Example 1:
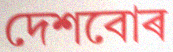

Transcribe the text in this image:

দেশবোৰ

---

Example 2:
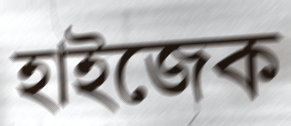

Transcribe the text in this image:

হাইজেক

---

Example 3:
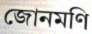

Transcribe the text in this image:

জোনমণি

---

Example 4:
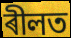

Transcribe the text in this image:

ৰীলত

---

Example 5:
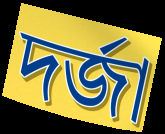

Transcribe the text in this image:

দৰ্জা